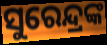
ସୁରେନ୍ଦ୍ରଙ୍କ